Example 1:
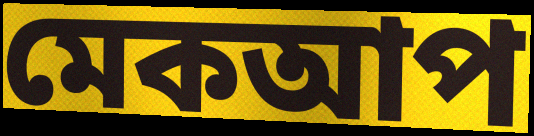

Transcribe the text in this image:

মেকআপ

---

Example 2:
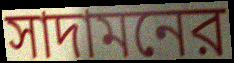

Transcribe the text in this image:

সাদামনের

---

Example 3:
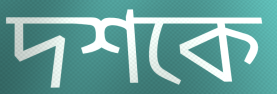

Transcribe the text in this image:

দশকে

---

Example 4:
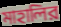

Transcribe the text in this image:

মাহালির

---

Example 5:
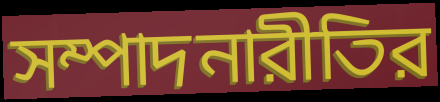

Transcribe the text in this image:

সম্পাদনারীতির